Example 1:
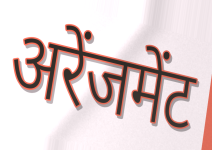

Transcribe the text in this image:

अरेंजमेंट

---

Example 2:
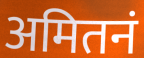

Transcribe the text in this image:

अमितनं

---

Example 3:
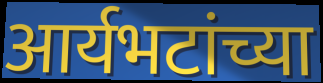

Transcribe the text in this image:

आर्यभटांच्या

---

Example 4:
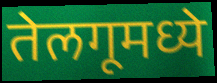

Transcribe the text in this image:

तेलगूमध्ये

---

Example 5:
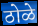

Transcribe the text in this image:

ठोळे